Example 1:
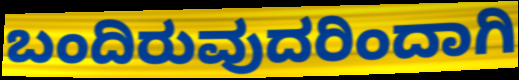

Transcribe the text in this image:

ಬಂದಿರುವುದರಿಂದಾಗಿ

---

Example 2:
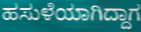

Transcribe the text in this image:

ಹಸುಳೆಯಾಗಿದ್ದಾಗ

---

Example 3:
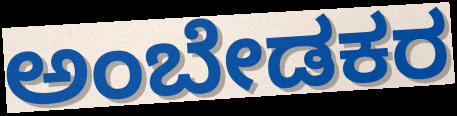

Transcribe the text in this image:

ಅಂಬೇಡಕರ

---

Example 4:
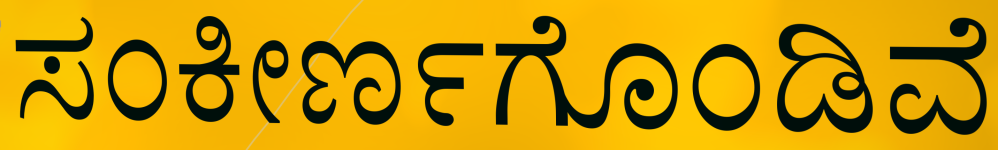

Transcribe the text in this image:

ಸಂಕೀರ್ಣಗೊಂಡಿವೆ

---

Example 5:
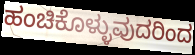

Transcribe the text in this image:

ಹಂಚಿಕೊಳ್ಳುವುದರಿಂದ